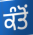
ਕੰਤੋਂ